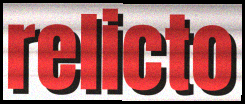
relicto